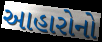
આહારોનો